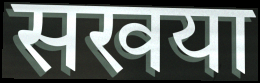
सखया